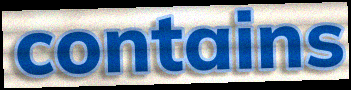
contains